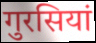
गुरसियां